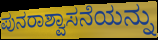
ಪುನರಾಶ್ವಾಸನೆಯನ್ನು